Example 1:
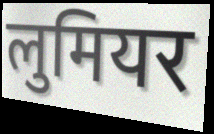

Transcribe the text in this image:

लुमियर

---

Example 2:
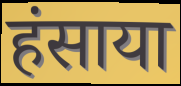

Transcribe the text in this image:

हंसाया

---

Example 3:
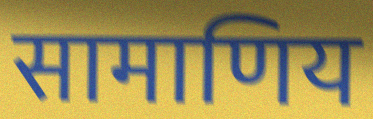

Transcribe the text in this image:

सामाणिय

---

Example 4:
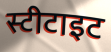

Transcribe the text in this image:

स्टीटाइट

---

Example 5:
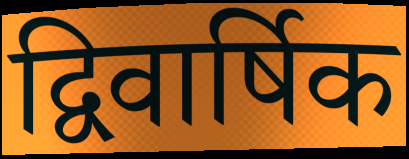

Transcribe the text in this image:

द्विवार्षिक